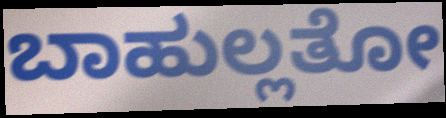
ಬಾಹುಲ್ಲತೋ